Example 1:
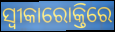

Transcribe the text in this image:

ସ୍ୱୀକାରୋକ୍ତିରେ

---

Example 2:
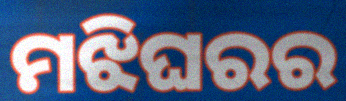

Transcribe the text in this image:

ମଝିଘରର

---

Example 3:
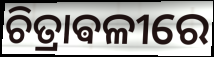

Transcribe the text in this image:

ଚିତ୍ରାଵଳୀରେ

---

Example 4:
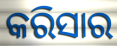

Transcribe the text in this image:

କରିସାର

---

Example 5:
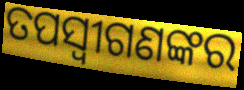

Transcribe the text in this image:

ତପସ୍ୱୀଗଣଙ୍କର